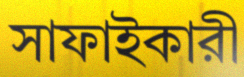
সাফাইকারী